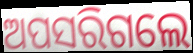
ଅପସରିଗଲେ